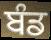
ਬੰਡ